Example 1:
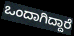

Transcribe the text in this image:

ಒಂದಾಗಿದ್ದಾರೆ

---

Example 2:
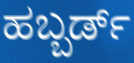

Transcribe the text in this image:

ಹಬ್ಬರ್ಡ್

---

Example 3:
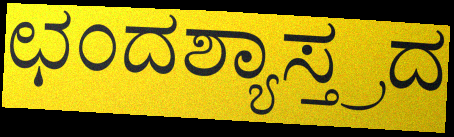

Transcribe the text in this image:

ಛಂದಶ್ಯಾಸ್ತ್ರದ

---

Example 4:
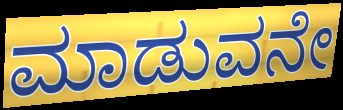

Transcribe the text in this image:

ಮಾಡುವನೇ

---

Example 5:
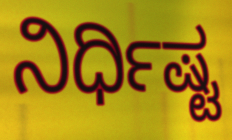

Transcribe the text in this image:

ನಿರ್ಧಿಷ್ಟ